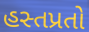
હસ્તપ્રતો